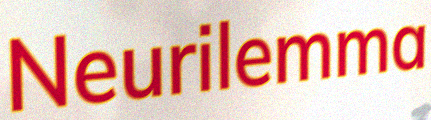
Neurilemma